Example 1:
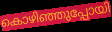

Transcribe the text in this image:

കൊഴിഞ്ഞുപ്പോയി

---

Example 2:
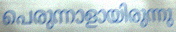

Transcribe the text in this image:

പെരുന്നാളായിരുന്നു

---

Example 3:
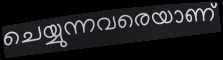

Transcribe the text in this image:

ചെയ്യുന്നവരെയാണ്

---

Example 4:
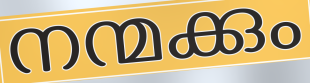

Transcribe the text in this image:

നന്മക്കും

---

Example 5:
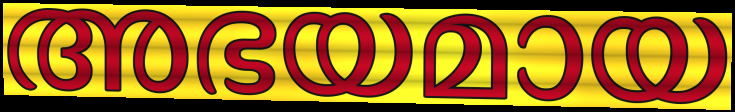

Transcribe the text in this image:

അഭയമായ